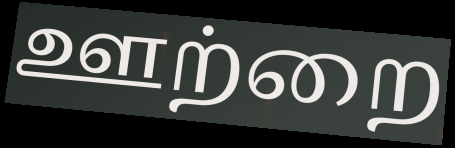
ஊற்றை